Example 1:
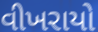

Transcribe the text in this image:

વીખરાયો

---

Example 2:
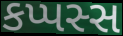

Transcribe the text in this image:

કપ્પસ્સ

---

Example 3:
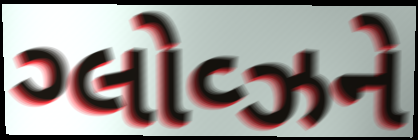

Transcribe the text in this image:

ગ્લોવ્ઝને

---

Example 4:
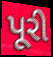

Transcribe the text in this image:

પૂરી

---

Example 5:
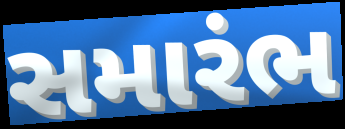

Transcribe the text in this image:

સમારંભ